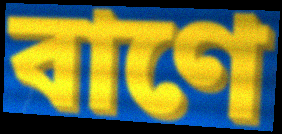
বাণে